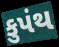
કુપંથ